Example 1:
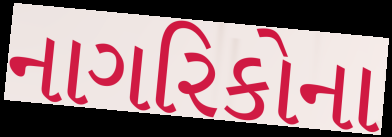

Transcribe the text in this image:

નાગરિકોના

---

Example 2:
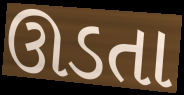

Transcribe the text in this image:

ઊડતા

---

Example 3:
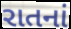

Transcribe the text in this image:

રાતનાં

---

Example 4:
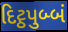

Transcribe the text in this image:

દિટ્ઠપુબ્બં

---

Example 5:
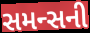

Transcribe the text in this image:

સમન્સની